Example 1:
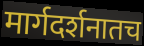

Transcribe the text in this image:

मार्गदर्शनातच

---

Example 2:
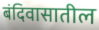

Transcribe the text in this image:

बंदिवासातील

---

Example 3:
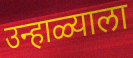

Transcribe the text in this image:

उन्हाळ्याला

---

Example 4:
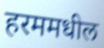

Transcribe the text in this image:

हरममधील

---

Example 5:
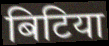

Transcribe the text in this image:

बिटिया